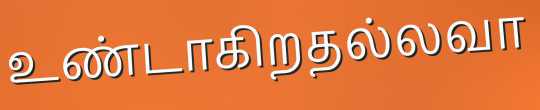
உண்டாகிறதல்லவா